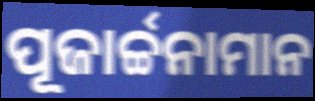
ପୂଜାର୍ଚ୍ଚନାମାନ